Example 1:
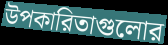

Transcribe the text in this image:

উপকারিতাগুলোর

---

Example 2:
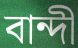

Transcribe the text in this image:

বান্দী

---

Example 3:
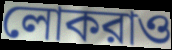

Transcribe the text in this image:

লোকরাও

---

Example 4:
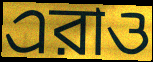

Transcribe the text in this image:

এরাও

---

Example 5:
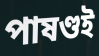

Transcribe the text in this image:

পাষণ্ডই